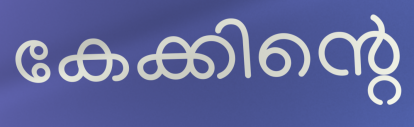
കേക്കിന്റെ